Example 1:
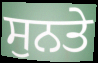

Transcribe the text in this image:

ਸੁਨਤੇ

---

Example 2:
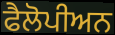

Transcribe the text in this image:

ਫੈਲੋਪੀਅਨ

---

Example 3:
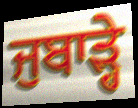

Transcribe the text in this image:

ਜੁਬਾੜ੍ਹੇ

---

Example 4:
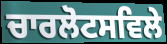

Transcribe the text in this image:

ਚਾਰਲੋਟਸਵਿਲੇ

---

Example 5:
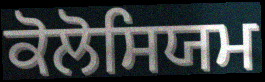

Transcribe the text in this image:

ਕੋਲੋਸਿਯਮ